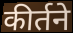
कीर्तने